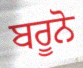
ਬਰੂਨੋ